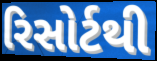
રિસોર્ટથી